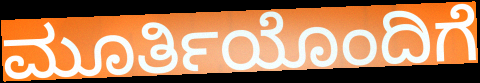
ಮೂರ್ತಿಯೊಂದಿಗೆ